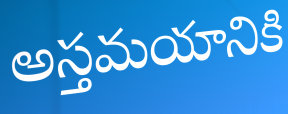
అస్తమయానికి